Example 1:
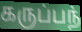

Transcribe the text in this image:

கருப்பந்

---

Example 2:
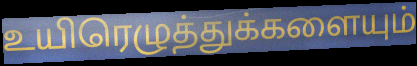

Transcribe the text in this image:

உயிரெழுத்துக்களையும்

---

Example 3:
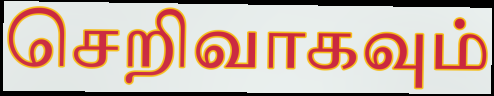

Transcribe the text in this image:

செறிவாகவும்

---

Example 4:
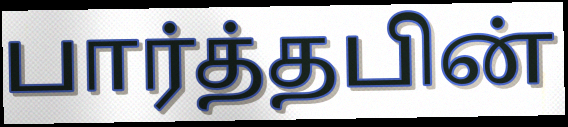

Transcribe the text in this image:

பார்த்தபின்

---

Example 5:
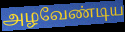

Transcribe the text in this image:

அழவேண்டிய